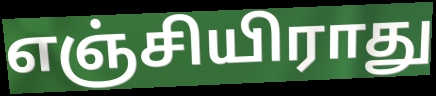
எஞ்சியிராது